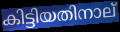
കിട്ടിയതിനാല്